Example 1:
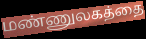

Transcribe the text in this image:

மண்ணுலகத்தை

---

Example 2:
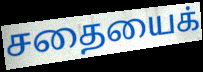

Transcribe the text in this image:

சதையைக்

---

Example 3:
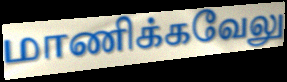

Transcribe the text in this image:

மாணிக்கவேலு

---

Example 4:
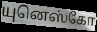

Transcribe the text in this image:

யுனெஸ்கோ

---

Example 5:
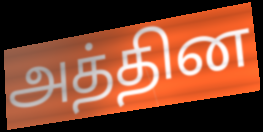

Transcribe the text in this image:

அத்தின